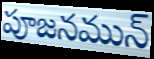
పూజనమున్